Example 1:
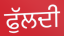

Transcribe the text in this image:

ਫੁੱਲਦੀ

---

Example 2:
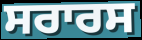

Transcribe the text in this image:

ਸਰਾਰਸ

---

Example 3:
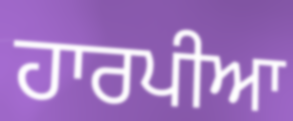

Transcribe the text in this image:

ਹਾਰਪੀਆ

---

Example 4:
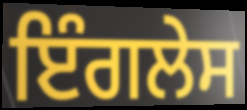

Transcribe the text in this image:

ਇੰਗਲੇਸ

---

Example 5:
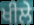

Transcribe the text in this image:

ਖੀਲੇ